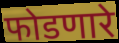
फोडणारे